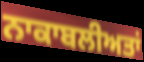
ਨਾਕਾਬਲੀਅਤਾਂ